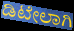
ಡಿಟೇಲಾಗಿ